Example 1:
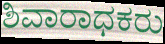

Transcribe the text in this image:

ಶಿವಾರಾಧಕರು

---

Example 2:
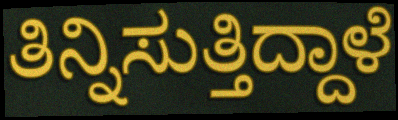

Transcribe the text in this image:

ತಿನ್ನಿಸುತ್ತಿದ್ದಾಳೆ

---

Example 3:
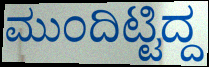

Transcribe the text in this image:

ಮುಂದಿಟ್ಟಿದ್ದ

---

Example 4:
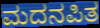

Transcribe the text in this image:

ಮದನಪಿತ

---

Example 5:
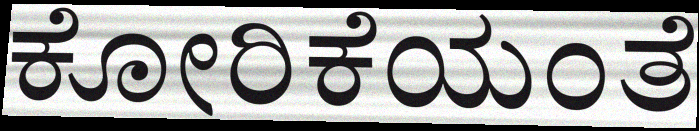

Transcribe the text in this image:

ಕೋರಿಕೆಯಂತೆ